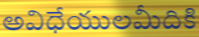
అవిధేయులమీదికి